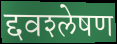
द्दवश्लेषण